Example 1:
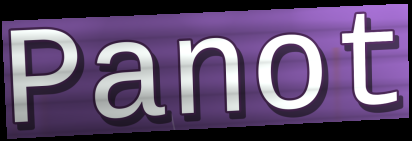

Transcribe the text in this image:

Panot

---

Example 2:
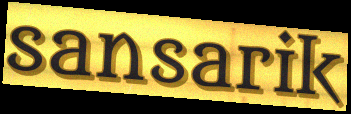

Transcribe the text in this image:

sansarik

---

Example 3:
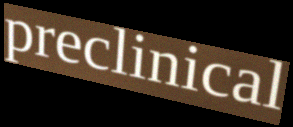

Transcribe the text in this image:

preclinical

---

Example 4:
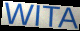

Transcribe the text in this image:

WITA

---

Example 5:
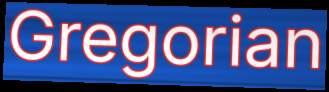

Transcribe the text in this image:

Gregorian